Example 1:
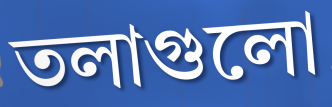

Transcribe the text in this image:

তলাগুলো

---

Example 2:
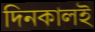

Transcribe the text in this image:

দিনকালই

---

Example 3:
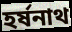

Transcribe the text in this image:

হর্ষনাথ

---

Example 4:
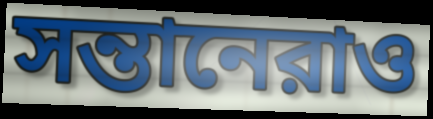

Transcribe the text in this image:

সন্তানেরাও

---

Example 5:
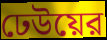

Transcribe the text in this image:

ঢেউয়ের